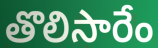
తొలిసారేం